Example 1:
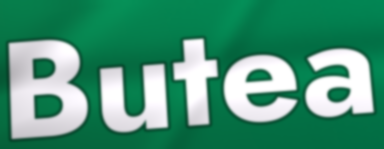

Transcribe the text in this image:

Butea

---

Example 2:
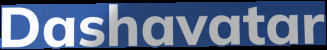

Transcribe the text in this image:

Dashavatar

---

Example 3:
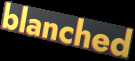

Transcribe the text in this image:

blanched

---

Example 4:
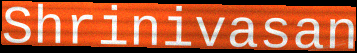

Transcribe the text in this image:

Shrinivasan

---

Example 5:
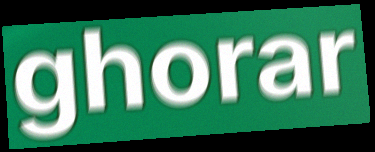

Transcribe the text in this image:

ghorar